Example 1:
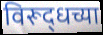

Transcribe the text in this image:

विरूद्धच्या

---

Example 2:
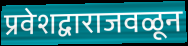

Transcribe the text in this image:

प्रवेशद्वाराजवळून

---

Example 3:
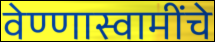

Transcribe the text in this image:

वेण्णास्वामींचे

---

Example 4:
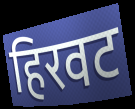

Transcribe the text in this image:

हिरवट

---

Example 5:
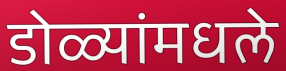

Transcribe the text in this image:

डोळ्यांमधले